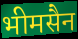
भीमसैन